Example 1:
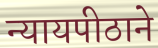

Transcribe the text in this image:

न्यायपीठाने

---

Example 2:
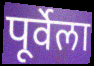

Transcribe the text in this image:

पूर्वेला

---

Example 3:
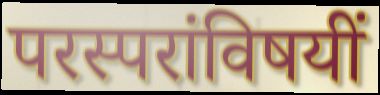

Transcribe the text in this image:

परस्परांविषयीं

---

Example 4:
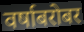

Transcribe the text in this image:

वर्षाबरोबर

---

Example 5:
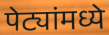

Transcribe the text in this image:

पेट्यांमध्ये